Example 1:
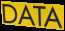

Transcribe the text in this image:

DATA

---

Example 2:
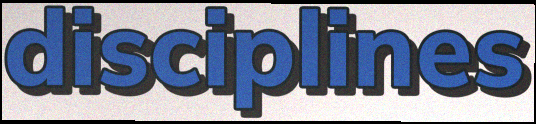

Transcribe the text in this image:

disciplines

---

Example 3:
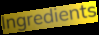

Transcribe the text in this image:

Ingredients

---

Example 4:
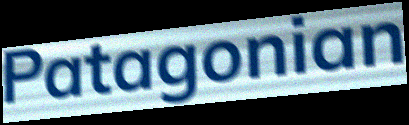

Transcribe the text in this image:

Patagonian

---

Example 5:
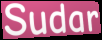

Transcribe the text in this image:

Sudar